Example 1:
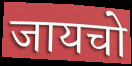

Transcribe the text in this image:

जायचो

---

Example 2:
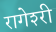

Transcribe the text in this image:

रागेश्री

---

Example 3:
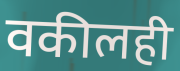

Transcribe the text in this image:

वकीलही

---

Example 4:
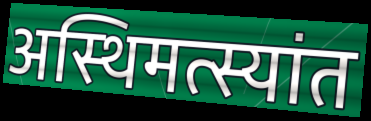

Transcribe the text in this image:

अस्थिमत्स्यांत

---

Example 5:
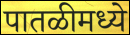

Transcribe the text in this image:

पातळीमध्ये